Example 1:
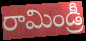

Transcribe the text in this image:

రామిండ్రీ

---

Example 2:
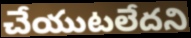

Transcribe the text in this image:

చేయుటలేదని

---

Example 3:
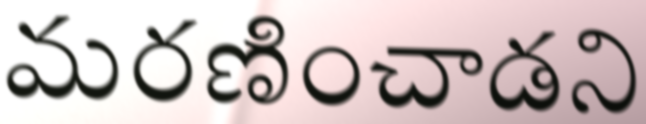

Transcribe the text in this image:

మరణించాడని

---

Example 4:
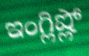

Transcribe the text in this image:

ఇంగ్లిష్లో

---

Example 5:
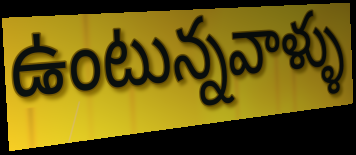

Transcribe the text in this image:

ఉంటున్నవాళ్ళు